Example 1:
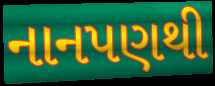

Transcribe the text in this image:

નાનપણથી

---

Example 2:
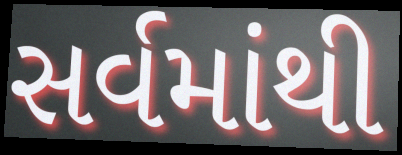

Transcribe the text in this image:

સર્વમાંથી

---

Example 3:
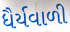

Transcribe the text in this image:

ધૈર્યવાળી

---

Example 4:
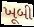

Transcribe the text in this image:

ખૂબી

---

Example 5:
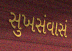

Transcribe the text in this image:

સુખસંવાસં